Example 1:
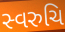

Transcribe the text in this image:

સ્વરુચિ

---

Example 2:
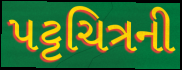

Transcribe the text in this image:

પટ્ટચિત્રની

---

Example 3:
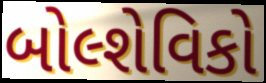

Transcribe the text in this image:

બોલ્શેવિકો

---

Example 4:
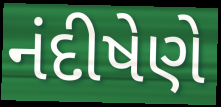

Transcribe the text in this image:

નંદીષેણે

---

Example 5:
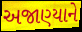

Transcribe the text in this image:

અજાણ્યાને